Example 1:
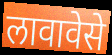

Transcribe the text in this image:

लावावेसे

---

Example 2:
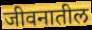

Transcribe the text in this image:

जीवनातील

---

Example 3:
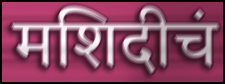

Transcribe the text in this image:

मशिदीचं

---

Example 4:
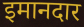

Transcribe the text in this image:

इमानदार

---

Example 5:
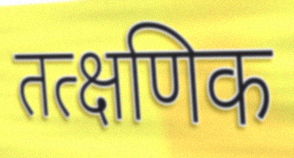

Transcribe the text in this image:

तत्क्षणिक